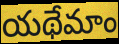
యథేమాం